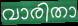
വാരിതാ